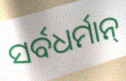
ସର୍ବଧର୍ମାନ୍